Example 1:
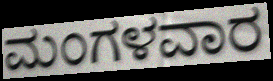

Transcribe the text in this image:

ಮಂಗಳವಾರ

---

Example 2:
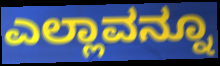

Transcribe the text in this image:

ಎಲ್ಲಾವನ್ನೂ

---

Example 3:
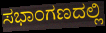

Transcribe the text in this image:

ಸಭಾಂಗಣದಲ್ಲಿ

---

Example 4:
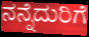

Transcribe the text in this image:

ನನ್ನೆದುರಿಗೆ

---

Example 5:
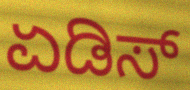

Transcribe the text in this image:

ಏಡಿಸ್